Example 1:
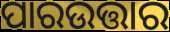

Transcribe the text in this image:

ପାରଉତ୍ତାର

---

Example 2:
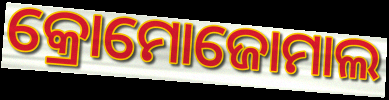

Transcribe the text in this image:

କ୍ରୋମୋଜୋମାଲ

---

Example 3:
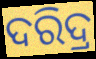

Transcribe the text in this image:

ଦରିଦ୍ର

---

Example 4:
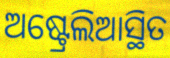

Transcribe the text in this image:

ଅଷ୍ଟ୍ରେଲିଆସ୍ଥିତ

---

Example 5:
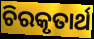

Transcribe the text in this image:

ଚିରକୃତାର୍ଥ